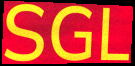
SGL